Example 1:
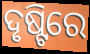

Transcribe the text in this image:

ଦୃଷ୍ଟିରେ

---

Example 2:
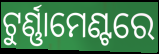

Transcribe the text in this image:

ଟୁର୍ଣ୍ଣାମେଣ୍ଟରେ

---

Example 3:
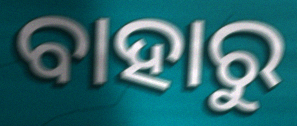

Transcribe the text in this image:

ବାହାରୁ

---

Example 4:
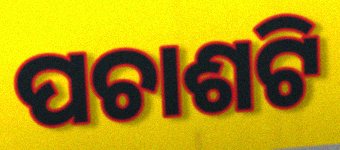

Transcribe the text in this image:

ପଚାଶଟି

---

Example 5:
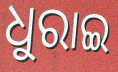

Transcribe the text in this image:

ଧୁରାଇ